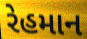
રેહમાન